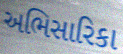
અભિસારિકા